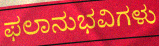
ಫಲಾನುಭವಿಗಳು